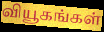
வியூகங்கள்